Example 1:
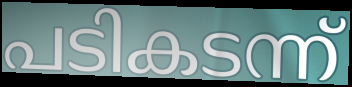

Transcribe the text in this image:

പടികടന്ന്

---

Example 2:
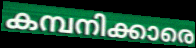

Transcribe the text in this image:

കമ്പനിക്കാരെ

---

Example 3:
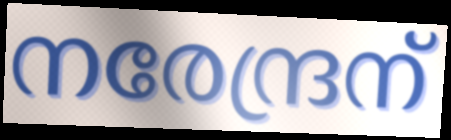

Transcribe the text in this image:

നരേന്ദ്രന്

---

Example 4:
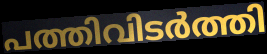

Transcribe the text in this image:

പത്തിവിടർത്തി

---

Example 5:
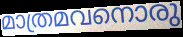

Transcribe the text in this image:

മാത്രമവനൊരു